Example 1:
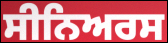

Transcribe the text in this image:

ਸੀਨਿਅਰਸ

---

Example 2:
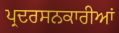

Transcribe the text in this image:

ਪ੍ਰਦਰਸਨਕਾਰੀਆਂ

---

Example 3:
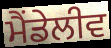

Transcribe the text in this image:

ਮੈਂਡੇਲੀਵ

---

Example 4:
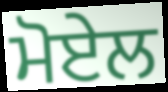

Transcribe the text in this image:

ਮੋਏਲ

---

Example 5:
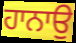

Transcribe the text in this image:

ਹਾਨਾਉ